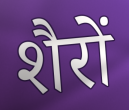
शैरों